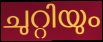
ചുറ്റിയും